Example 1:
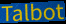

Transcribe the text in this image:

Talbot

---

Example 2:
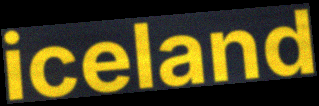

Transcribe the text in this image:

iceland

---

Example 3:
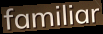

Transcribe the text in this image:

familiar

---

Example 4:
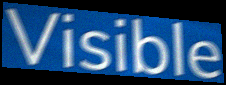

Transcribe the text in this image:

Visible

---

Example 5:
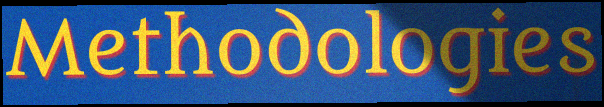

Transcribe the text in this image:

Methodologies